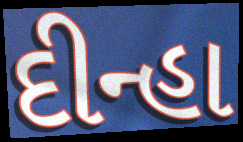
દીન્હા